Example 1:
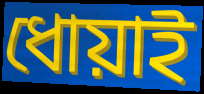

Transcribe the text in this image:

ধোয়াই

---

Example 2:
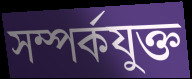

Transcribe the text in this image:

সম্পর্কযুক্ত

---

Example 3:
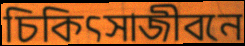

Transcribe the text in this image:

চিকিৎসাজীবনে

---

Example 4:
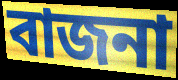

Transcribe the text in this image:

বাজনা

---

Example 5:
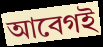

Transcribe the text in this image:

আবেগই